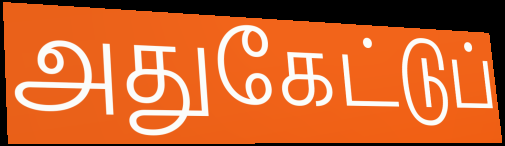
அதுகேட்டுப்